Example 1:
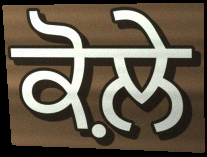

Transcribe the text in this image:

ਕੋਲ਼ੇ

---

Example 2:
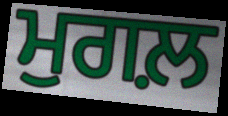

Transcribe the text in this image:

ਮੁਗਲ਼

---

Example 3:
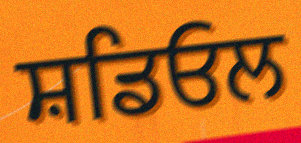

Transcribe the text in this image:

ਸ਼ਡਿਓਲ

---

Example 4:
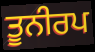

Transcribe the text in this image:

ਤੂਨੀਰਪ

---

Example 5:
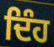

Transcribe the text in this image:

ਦਿੰਹ